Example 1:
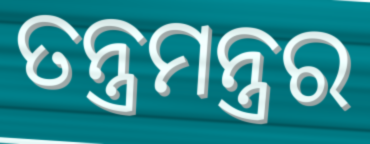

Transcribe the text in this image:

ତନ୍ତ୍ରମନ୍ତ୍ରର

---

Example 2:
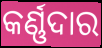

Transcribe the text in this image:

କର୍ଣ୍ଣଦାର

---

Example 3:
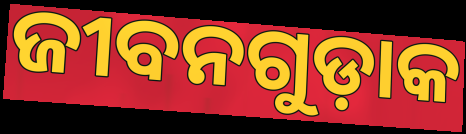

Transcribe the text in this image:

ଜୀବନଗୁଡ଼ାକ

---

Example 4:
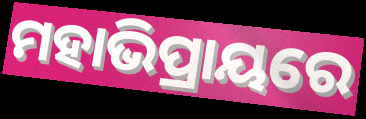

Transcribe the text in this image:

ମହାଭିପ୍ରାୟରେ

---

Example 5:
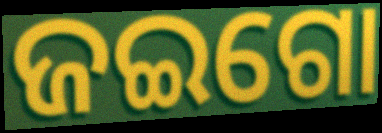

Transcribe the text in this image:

ଜଇଗୋ